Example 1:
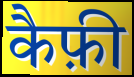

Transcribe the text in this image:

कैफ़ी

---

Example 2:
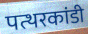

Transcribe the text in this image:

पत्थरकांडी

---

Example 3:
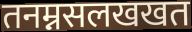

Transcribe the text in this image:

तनम्नसलखखत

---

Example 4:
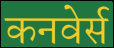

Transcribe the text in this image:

कनवेर्स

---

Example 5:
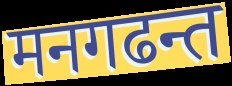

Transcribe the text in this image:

मनगढन्त